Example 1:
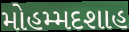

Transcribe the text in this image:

મોહમ્મદશાહ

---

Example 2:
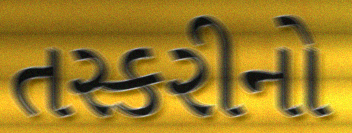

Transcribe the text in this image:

તસ્કરીનો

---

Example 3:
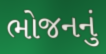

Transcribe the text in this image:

ભોજનનું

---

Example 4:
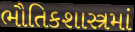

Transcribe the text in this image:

ભૌતિકશાસ્ત્રમાં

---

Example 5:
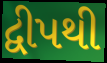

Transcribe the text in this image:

દ્વીપથી